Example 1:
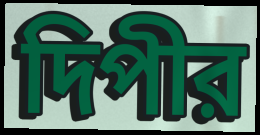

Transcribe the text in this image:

দিপীর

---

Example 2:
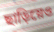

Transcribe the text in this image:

ছাড়িয়েও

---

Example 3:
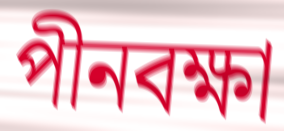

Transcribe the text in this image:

পীনবক্ষা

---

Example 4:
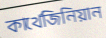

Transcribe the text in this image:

কার্থেজিনিয়ান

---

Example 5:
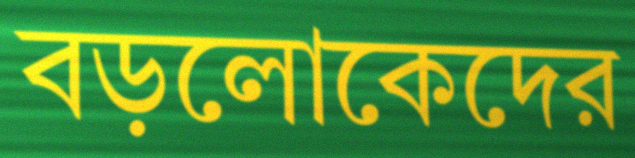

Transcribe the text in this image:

বড়লোকেদের